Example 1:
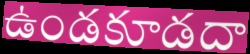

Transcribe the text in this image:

ఉండకూడదా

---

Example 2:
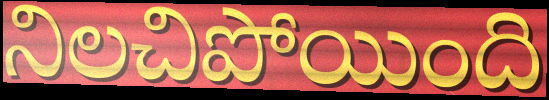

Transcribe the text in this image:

నిలచిపోయింది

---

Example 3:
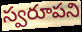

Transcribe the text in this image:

స్వరూపని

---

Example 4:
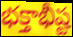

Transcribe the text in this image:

భక్తాభీష్ట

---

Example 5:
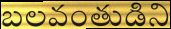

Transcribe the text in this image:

బలవంతుడిని